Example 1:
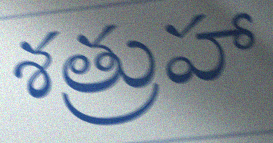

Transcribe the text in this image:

శత్రుహా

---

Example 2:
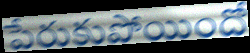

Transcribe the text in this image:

పేరుకుపోయిందో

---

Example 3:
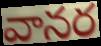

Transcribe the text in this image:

వానర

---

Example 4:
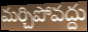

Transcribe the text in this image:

మర్చిపోవద్దు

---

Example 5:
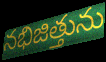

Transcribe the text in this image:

నభిజిత్తును